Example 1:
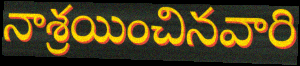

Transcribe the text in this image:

నాశ్రయించినవారి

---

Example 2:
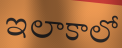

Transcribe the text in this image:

ఇలాకాలో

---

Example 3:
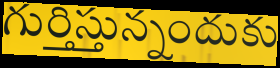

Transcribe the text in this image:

గుర్తిస్తున్నందుకు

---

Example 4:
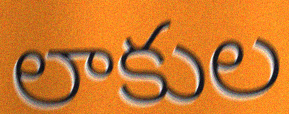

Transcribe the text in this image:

లాకుల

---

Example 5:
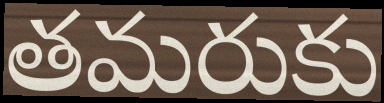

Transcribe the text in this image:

తమరుకు